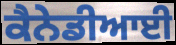
ਕੈਨੇਡੀਆਈ